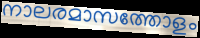
നാലരമാസത്തോളം